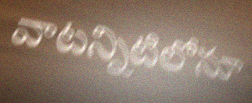
వాటన్నిటిలోనూ